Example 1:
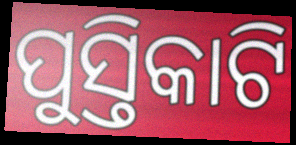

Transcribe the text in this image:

ପୁସ୍ତିକାଟି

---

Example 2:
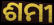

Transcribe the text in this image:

ଶମୀ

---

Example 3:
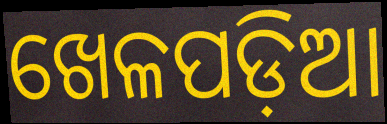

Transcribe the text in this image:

ଖେଳପଡ଼ିଆ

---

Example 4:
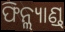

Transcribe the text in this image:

ଫିନ୍ଲ୍ୟାଣ୍ଡ୍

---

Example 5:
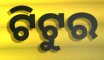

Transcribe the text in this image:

ଟିଟୁର